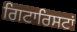
ਗਿਟਾਰਿਸਟਾਂ